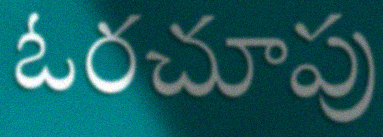
ఓరచూపు